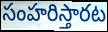
సంహరిస్తారట